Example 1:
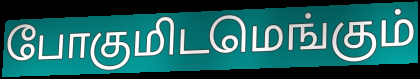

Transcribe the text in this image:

போகுமிடமெங்கும்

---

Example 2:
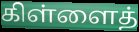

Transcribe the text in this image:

கிள்ளைத்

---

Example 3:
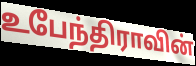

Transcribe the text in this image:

உபேந்திராவின்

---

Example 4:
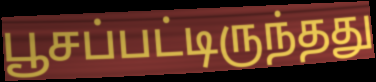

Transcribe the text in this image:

பூசப்பட்டிருந்தது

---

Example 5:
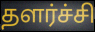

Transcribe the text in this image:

தளர்ச்சி